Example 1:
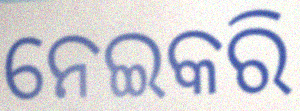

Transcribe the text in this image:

ନେଇକରି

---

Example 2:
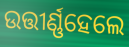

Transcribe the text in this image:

ଉତ୍ତୀର୍ଣ୍ଣହେଲେ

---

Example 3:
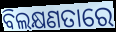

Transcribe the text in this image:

ବିଲକ୍ଷଣତାରେ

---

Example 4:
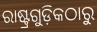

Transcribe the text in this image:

ରାଷ୍ଟ୍ରଗୁଡ଼ିକଠାରୁ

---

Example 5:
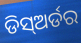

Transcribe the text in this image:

ଡିସ୍ଅର୍ଡର